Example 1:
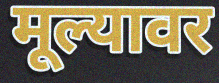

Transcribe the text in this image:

मूल्यावर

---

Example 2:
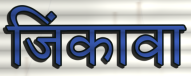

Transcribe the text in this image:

जिंकावा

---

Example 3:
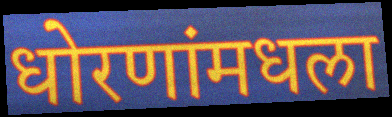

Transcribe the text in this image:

धोरणांमधला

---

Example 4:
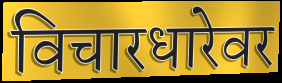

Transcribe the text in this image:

विचारधारेवर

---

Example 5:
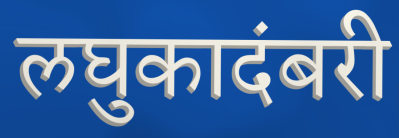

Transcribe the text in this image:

लघुकादंबरी